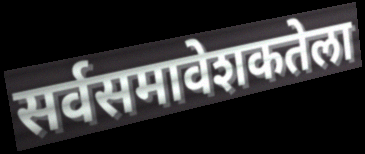
सर्वसमावेशकतेला